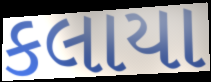
કલાયા